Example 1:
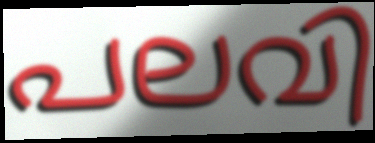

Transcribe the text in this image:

പലവി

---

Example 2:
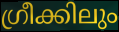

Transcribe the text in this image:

ഗ്രീക്കിലും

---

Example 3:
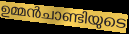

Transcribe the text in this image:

ഉമ്മൻചാണ്ടിയുടെ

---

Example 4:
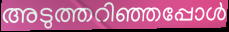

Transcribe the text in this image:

അടുത്തറിഞ്ഞപ്പോൾ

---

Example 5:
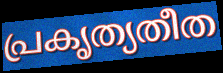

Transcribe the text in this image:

പ്രകൃത്യതീത